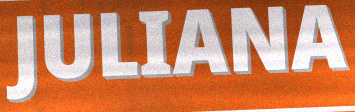
JULIANA